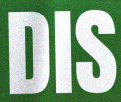
DIS